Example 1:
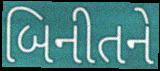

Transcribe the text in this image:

બિનીતને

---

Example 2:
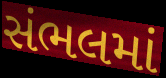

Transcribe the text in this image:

સંભલમાં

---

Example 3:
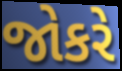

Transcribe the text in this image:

જોકરે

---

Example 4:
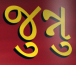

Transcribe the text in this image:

જુન્નુ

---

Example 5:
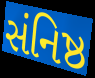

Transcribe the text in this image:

સંનિષ્ઠ